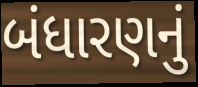
બંધારણનું